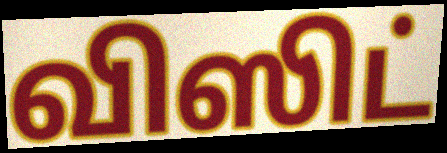
விஸிட்